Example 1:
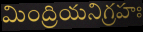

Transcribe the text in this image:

మింద్రియనిగ్రహః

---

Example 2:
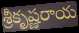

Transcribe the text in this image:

శ్రీకృష్ణరాయ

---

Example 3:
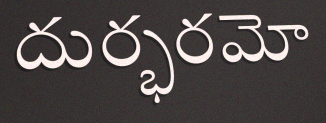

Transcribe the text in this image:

దుర్భరమో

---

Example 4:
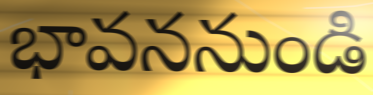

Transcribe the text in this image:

భావననుండి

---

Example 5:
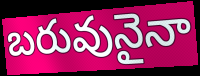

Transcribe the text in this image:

బరువునైనా